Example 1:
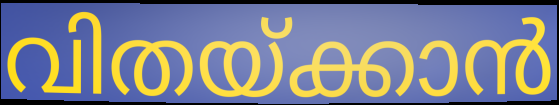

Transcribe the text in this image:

വിതയ്ക്കാൻ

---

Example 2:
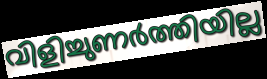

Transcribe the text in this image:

വിളിച്ചുണർത്തിയില്ല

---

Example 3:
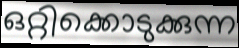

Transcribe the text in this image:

ഒറ്റിക്കൊടുക്കുന്ന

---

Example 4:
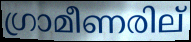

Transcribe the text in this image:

ഗ്രാമീണരില്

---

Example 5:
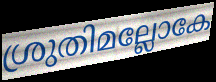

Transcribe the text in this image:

ശ്രുതിമല്ലോകേ